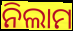
ନିଲାମ